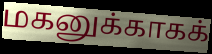
மகனுக்காகக்